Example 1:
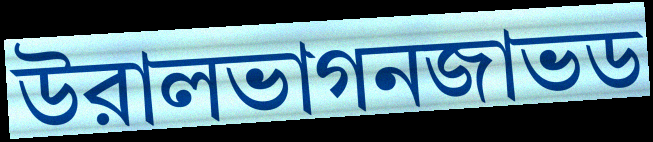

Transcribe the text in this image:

উরালভাগনজাভড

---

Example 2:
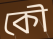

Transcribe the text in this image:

কৌ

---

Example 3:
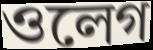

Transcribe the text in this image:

ওলেগ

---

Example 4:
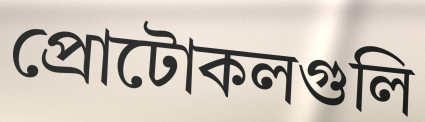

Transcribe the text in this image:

প্রোটোকলগুলি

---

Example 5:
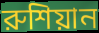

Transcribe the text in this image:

রুশিয়ান